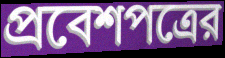
প্রবেশপত্রের